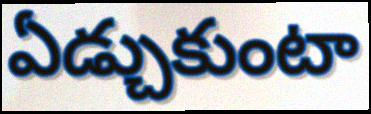
ఏడ్చుకుంటా